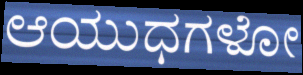
ಆಯುಧಗಳೋ